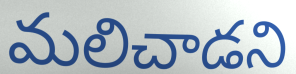
మలిచాడని